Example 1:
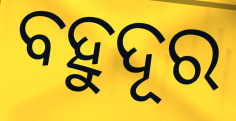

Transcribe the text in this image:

ବହୁଦୂର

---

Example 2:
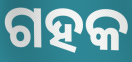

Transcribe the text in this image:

ଗହକ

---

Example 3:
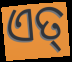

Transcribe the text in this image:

ଏତ୍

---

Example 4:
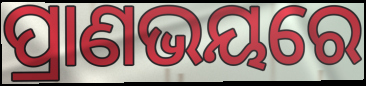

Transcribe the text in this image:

ପ୍ରାଣଭୟରେ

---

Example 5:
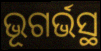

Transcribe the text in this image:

ଭୂଗର୍ଭସ୍ଥ